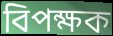
বিপক্ষক